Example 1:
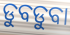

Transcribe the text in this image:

ଡୁବଡୁବା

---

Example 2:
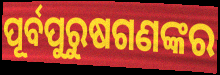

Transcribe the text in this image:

ପୂର୍ବପୁରୁଷଗଣଙ୍କର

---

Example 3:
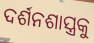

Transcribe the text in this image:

ଦର୍ଶନଶାସ୍ତ୍ରକୁ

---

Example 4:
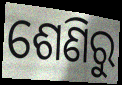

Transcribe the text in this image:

ଶେଣିରୁ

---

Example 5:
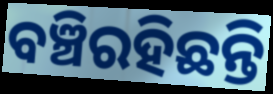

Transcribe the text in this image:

ବଞ୍ଚିରହିଛନ୍ତି